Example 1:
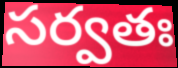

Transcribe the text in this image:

సర్వతః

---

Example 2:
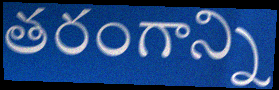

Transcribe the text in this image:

తరంగాన్ని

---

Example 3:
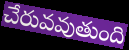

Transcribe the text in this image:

చేరువవుతుంది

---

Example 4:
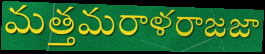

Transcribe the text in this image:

మత్తమరాళరాజజా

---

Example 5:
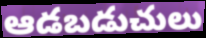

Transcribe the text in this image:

ఆడబడుచులు